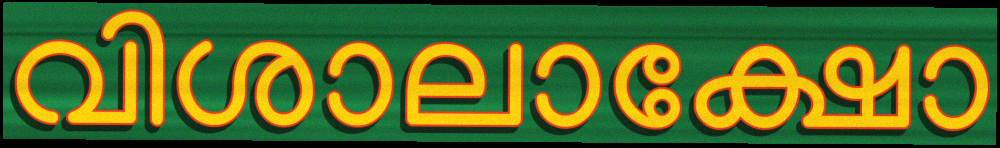
വിശാലാക്ഷോ